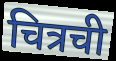
चित्रची